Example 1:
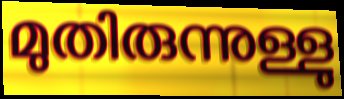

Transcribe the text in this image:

മുതിരുന്നുള്ളു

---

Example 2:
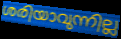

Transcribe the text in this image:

ശരിയാവുന്നില്ല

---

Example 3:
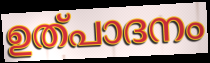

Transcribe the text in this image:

ഉത്പാദനം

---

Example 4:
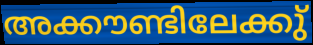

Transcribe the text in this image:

അക്കൗണ്ടിലേക്കു്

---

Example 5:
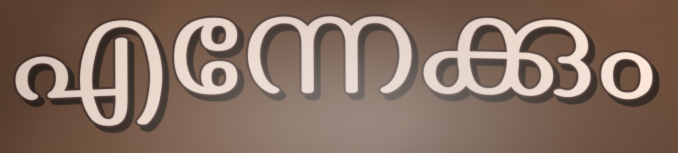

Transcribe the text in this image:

എന്നേക്കും